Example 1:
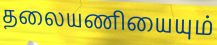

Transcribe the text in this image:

தலையணியையும்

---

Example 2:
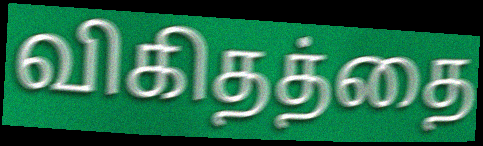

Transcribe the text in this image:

விகிதத்தை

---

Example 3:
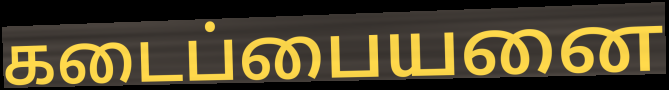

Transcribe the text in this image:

கடைப்பையனை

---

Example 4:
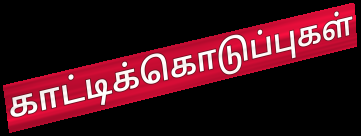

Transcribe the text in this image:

காட்டிக்கொடுப்புகள்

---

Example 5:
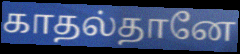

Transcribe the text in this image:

காதல்தானே